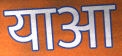
याआ